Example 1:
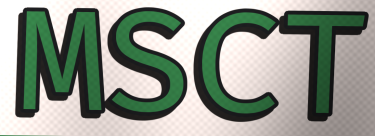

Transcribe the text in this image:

MSCT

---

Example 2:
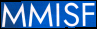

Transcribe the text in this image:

MMISF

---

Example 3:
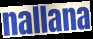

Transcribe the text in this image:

nallana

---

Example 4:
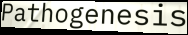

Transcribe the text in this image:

Pathogenesis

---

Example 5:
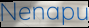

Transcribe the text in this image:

Nenapu